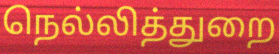
நெல்லித்துறை